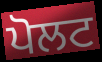
ਪੋਲਟ